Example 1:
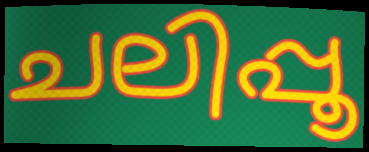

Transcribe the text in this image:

ചലിപ്പൂ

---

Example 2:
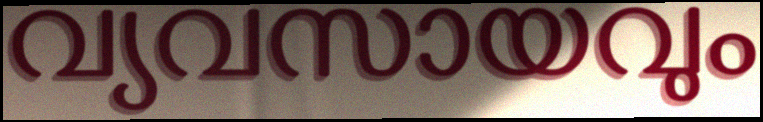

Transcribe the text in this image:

വ്യവസായവും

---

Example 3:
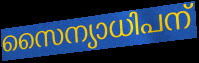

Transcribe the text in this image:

സൈന്യാധിപന്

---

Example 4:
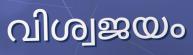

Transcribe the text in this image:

വിശ്വജയം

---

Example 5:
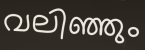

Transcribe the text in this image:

വലിഞ്ഞും